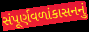
સંપૂર્ણવળાંકાસનનું